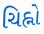
ચિહ્નો